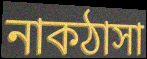
নাকঠাসা